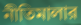
নীতিমালার